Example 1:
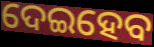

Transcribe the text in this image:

ଦେଇହେବ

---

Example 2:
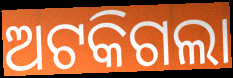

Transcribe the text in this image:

ଅଟକିଗଲା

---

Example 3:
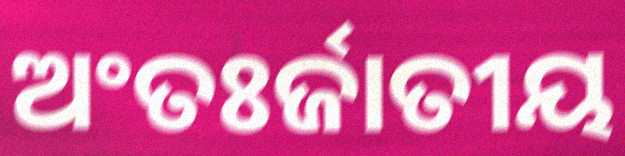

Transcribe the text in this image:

ଅଂତଃର୍ଜାତୀୟ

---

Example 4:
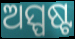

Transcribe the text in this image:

ଅସ୍ପଷ୍ଟ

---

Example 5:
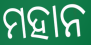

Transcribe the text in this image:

ମହାନ